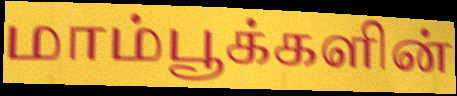
மாம்பூக்களின்